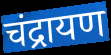
चंद्रायण